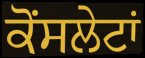
ਕੋਂਸਲੇਟਾਂ